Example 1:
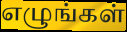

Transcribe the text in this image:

எழுங்கள்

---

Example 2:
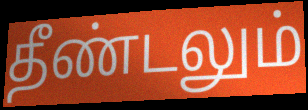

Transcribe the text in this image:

தீண்டலும்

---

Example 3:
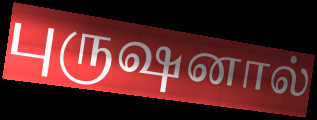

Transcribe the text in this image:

புருஷனால்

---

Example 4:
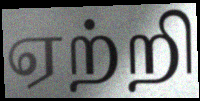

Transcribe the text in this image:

ஏற்றி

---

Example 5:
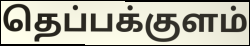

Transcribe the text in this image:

தெப்பக்குளம்